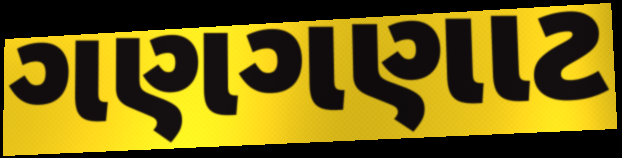
ગણગણાટ